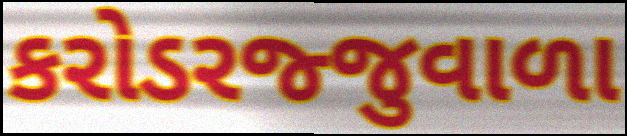
કરોડરજ્જુવાળા